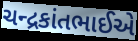
ચન્દ્રકાંતભાઈએ